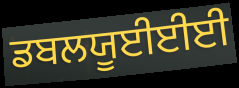
ਡਬਲਯੂਈਈਈ